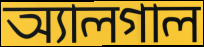
অ্যালগাল